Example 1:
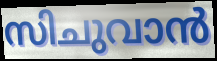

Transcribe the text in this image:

സിചുവാൻ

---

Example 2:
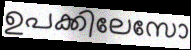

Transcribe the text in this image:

ഉപക്കിലേസോ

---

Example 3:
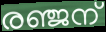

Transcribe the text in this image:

രഞ്ജന്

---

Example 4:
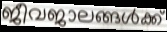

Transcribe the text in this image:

ജീവജാലങ്ങൾക്ക്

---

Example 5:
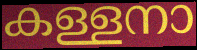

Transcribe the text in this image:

കള്ളനാ